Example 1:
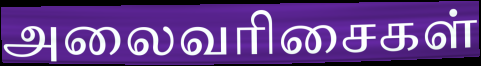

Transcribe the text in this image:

அலைவரிசைகள்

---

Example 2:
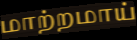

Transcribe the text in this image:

மாற்றமாய்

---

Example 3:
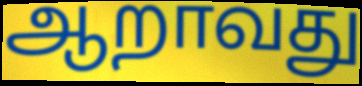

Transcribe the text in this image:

ஆறாவது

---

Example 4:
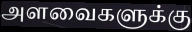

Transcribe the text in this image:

அளவைகளுக்கு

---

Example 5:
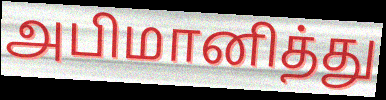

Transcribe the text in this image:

அபிமானித்து